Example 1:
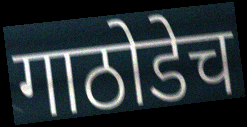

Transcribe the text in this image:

गाठोडेच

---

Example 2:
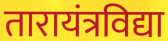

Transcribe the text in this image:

तारायंत्रविद्या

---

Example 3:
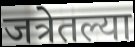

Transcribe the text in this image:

जत्रेतल्या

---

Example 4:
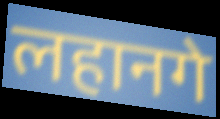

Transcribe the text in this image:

लहानगे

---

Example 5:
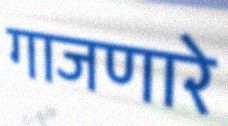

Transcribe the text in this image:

गाजणारे